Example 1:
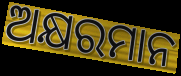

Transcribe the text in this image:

ଅକ୍ଷରମାନ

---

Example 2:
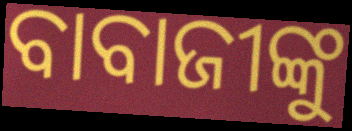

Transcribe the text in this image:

ବାବାଜୀଙ୍କୁ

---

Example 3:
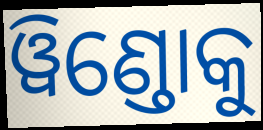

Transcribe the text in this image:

ୱିଣ୍ଡୋକୁ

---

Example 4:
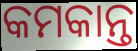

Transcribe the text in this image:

କମକାନ୍ତ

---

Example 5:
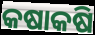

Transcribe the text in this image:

କଷାକଷି